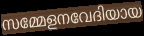
സമ്മേളനവേദിയായ